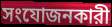
সংযোজনকারী